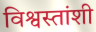
विश्वस्तांशी